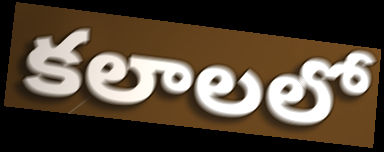
కలాలలో